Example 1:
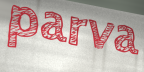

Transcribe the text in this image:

parva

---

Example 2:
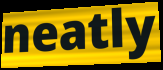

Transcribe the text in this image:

neatly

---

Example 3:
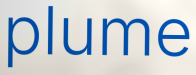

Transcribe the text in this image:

plume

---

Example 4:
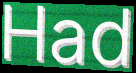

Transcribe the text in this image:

Had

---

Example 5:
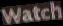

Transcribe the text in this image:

Watch